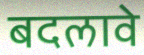
बदलावे